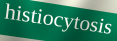
histiocytosis